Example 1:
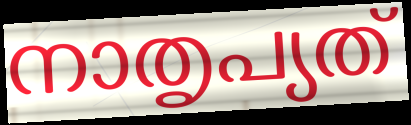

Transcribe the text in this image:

നാതൃപ്യത്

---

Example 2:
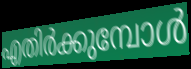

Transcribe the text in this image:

എതിർക്കുമ്പോൾ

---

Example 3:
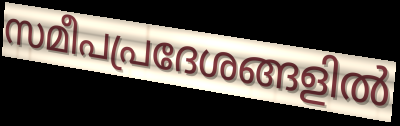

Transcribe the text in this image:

സമീപപ്രദേശങ്ങളിൽ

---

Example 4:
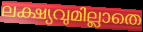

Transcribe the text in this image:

ലക്ഷ്യവുമില്ലാതെ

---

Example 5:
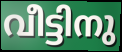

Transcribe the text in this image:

വീട്ടിനു